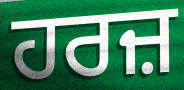
ਹਰਜ਼